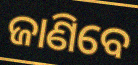
ଜାଣିବେ